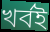
খর্বই